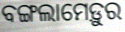
ବଙ୍ଗଲାମେଡ଼ୁର